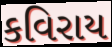
કવિરાય